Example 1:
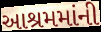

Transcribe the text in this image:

આશ્રમમાંની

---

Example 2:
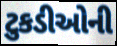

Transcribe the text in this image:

ટુકડીઓની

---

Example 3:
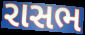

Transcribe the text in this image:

રાસભ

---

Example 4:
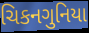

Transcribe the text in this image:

ચિકનગુનિયા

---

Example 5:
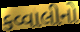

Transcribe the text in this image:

કવ્વાલીનો